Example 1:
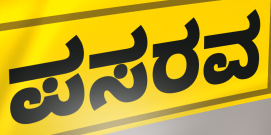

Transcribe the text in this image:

ಪಸರವ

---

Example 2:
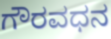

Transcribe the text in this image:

ಗೌರವಧನ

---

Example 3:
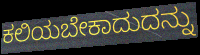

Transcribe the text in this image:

ಕಲಿಯಬೇಕಾದುದನ್ನು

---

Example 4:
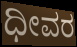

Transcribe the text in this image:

ಧೀವರ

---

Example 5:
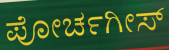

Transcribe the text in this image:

ಪೋರ್ಚಗೀಸ್